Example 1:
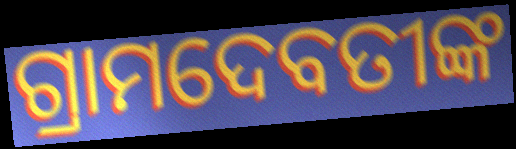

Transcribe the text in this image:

ଗ୍ରାମଦେବତୀଙ୍କ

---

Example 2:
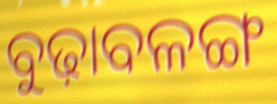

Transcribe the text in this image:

ବୁଢ଼ାବଳଙ୍ଗ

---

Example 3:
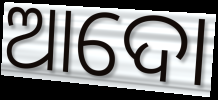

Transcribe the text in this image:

ଆଦୋ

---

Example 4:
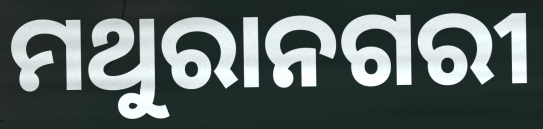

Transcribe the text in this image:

ମଥୁରାନଗରୀ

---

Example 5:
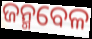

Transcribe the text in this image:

ଜନ୍ମବେଳ